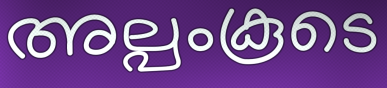
അല്പംകൂടെ